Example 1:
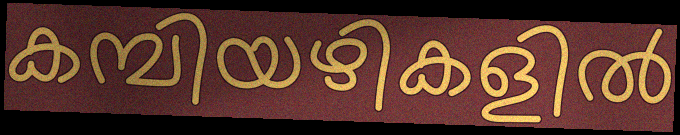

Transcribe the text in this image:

കമ്പിയഴികളിൽ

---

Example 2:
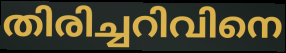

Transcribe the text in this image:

തിരിച്ചറിവിനെ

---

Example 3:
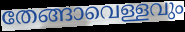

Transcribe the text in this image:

തേങ്ങാവെള്ളവും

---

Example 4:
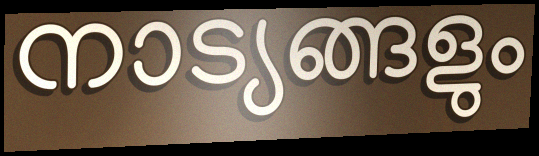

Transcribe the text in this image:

നാട്യങ്ങളും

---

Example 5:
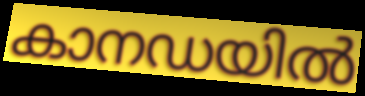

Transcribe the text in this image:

കാനഡയിൽ